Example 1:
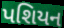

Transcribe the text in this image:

પશિયન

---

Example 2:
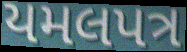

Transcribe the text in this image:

યમલપત્ર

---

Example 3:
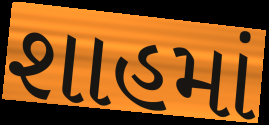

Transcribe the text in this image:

શાહમાં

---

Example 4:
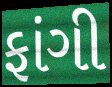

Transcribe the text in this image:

ફાંગી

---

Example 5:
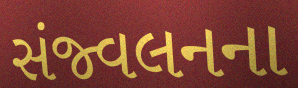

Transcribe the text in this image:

સંજ્વલનના